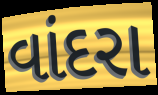
વાંદરા